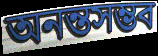
অনন্তসম্ভব